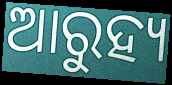
ଆରୁହ୍ୟ